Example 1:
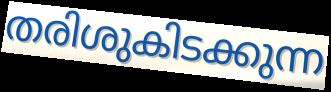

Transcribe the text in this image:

തരിശുകിടക്കുന്ന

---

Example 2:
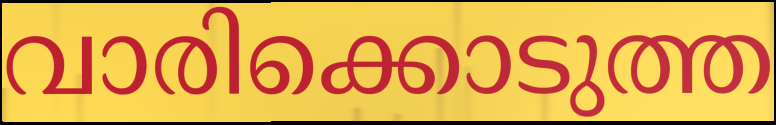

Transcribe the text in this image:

വാരിക്കൊടുത്ത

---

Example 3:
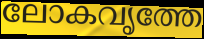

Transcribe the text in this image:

ലോകവൃത്തേ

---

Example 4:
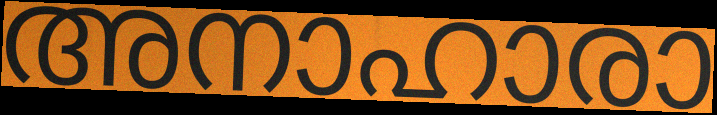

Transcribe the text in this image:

അനാഹാരാ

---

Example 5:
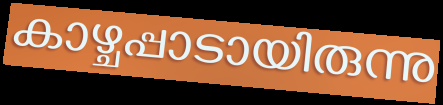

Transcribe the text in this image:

കാഴ്ചപ്പാടായിരുന്നു